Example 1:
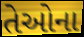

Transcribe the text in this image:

તેઓના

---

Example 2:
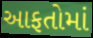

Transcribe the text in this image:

આફતોમાં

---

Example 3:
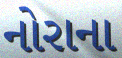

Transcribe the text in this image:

નોરાના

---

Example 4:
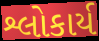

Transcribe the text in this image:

શ્લોકાર્ય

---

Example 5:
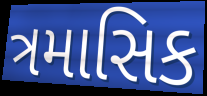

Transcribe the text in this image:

ત્રમાસિક